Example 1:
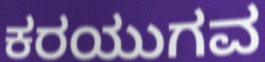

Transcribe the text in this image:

ಕರಯುಗವ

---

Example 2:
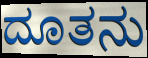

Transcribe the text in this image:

ದೂತನು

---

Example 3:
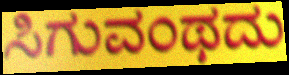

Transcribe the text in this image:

ಸಿಗುವಂಥದು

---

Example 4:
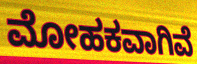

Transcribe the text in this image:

ಮೋಹಕವಾಗಿವೆ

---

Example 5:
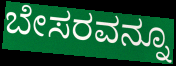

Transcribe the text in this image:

ಬೇಸರವನ್ನೂ